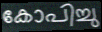
കോപിച്ചു